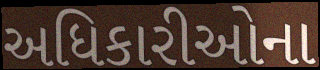
અધિકારીઓના